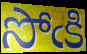
సోఁకి